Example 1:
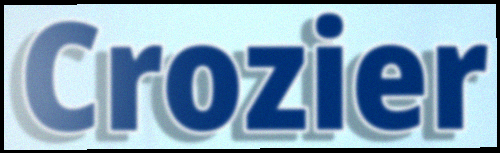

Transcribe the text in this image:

Crozier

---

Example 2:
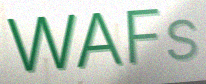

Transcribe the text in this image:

WAFs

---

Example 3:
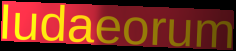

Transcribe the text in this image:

Iudaeorum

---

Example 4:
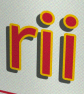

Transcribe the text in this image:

rii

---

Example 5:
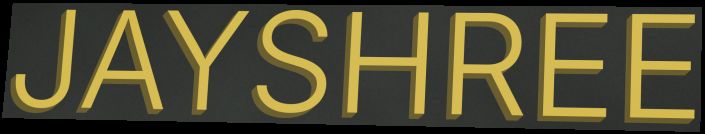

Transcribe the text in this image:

JAYSHREE